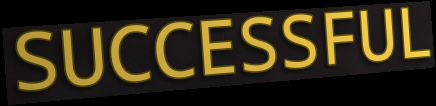
SUCCESSFUL